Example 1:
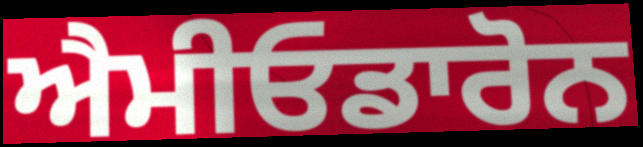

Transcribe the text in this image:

ਐਮੀਓਡਾਰੋਨ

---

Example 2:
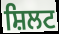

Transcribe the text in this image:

ਸ਼ਿਲਟ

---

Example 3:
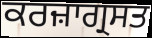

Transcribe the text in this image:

ਕਰਜ਼ਾਗ੍ਰਸਤ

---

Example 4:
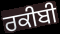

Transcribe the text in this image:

ਰਕੀਬੀ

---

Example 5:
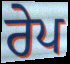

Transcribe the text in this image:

ਰੇਪ